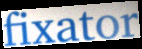
fixator